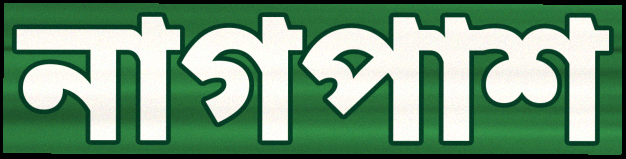
নাগপাশ